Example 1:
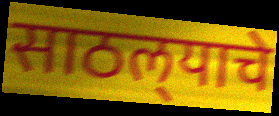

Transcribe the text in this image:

साठल्याचे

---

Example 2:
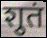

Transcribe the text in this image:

श्रुतं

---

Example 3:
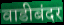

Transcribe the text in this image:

वाडीबंदर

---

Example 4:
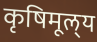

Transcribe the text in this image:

कृषिमूल्य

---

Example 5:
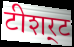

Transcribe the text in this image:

टीशर्ट